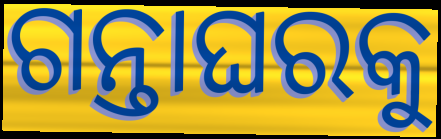
ଗନ୍ତାଘରକୁ